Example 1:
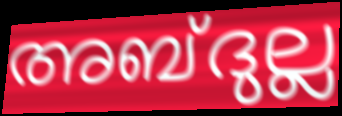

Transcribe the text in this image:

അബ്ദുല്ല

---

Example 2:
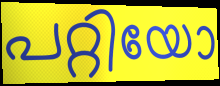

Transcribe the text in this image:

പറ്റിയോ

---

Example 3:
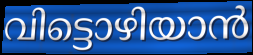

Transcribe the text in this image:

വിട്ടൊഴിയാൻ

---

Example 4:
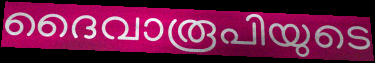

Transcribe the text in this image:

ദൈവാരൂപിയുടെ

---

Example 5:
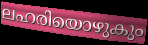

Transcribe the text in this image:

ലഹരിയൊഴുകും